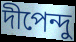
দীপেন্দু